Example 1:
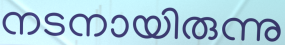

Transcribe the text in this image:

നടനായിരുന്നു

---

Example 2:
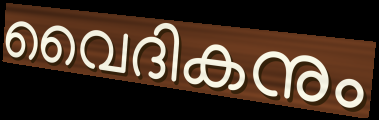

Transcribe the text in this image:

വൈദികനും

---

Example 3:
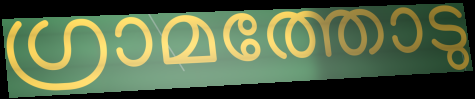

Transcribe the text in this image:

ഗ്രാമത്തോടു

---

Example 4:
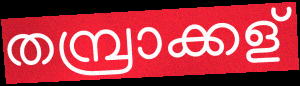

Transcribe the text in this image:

തമ്പ്രാക്കള്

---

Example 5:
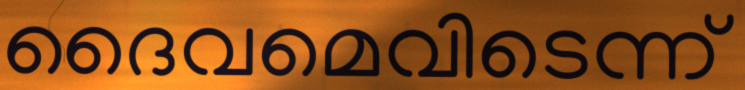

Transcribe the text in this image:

ദൈവമെവിടെന്ന്